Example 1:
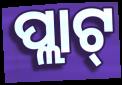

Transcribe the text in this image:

ପ୍ଲାଟ୍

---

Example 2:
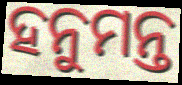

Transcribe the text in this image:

ହନୁମନ୍ତ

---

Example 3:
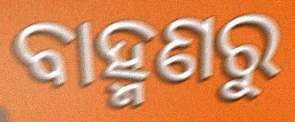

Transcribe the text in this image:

ବାହ୍ମଣରୁ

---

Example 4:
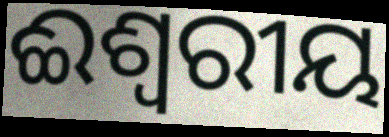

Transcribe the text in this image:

ଈଶ୍ବରୀୟ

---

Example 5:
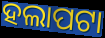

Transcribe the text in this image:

ହଲାପଟା